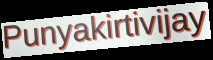
Punyakirtivijay